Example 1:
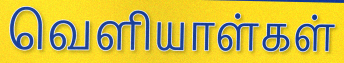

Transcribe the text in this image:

வெளியாள்கள்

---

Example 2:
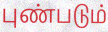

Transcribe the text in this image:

புண்படும்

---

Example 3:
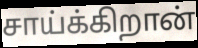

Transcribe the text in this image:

சாய்க்கிறான்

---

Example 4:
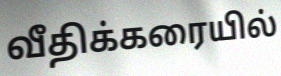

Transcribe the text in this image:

வீதிக்கரையில்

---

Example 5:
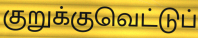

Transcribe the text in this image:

குறுக்குவெட்டுப்